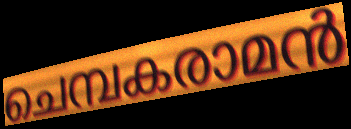
ചെമ്പകരാമൻ